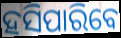
ହସିପାରିବେ